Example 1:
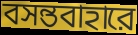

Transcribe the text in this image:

বসন্তবাহারে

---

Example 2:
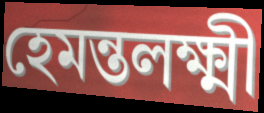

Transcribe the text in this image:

হেমন্তলক্ষ্মী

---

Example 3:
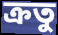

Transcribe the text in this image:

ক্রতু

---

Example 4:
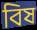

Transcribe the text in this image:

বিষ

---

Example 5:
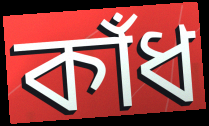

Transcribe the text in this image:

কাঁধ